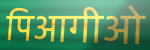
पिआगीओ